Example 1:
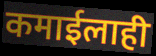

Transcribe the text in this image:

कमाईलाही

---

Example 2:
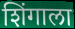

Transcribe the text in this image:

शिंगाला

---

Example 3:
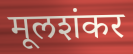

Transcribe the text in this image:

मूलशंकर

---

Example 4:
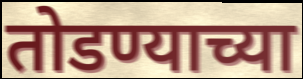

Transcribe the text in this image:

तोडण्याच्या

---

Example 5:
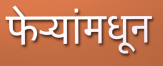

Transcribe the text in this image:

फेऱ्यांमधून